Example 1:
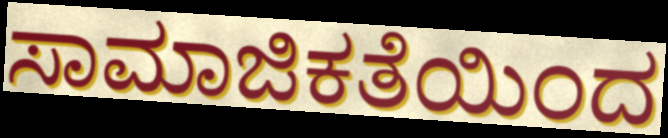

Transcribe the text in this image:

ಸಾಮಾಜಿಕತೆಯಿಂದ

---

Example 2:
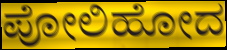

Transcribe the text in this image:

ಪೋಲಿಹೋದ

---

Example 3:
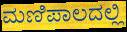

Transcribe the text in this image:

ಮಣಿಪಾಲದಲ್ಲಿ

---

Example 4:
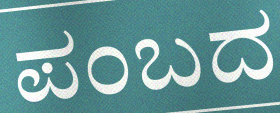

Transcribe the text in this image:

ಪಂಬದ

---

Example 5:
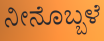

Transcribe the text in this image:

ನೀನೊಬ್ಬಳೆ